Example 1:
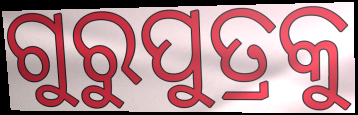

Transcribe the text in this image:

ଗୁରୁପୁତ୍ରକୁ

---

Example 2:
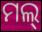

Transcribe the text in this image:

ମଲ୍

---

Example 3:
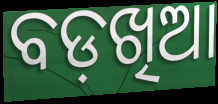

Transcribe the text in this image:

ବଡ଼ଖିଆ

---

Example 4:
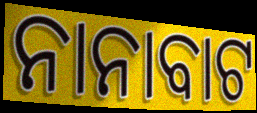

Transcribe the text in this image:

ନାନାବାଟ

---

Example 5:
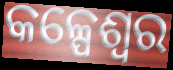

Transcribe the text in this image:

କଳ୍ପେଶ୍ୱର